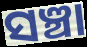
ସଞ୍ଚା